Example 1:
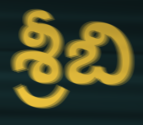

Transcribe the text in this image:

శ్రీబి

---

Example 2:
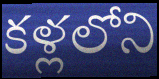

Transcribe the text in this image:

కళ్లలోని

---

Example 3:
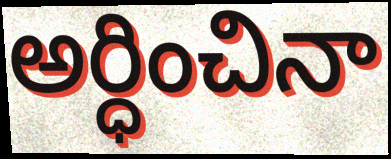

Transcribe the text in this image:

అర్ధించినా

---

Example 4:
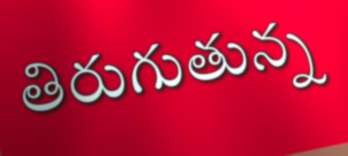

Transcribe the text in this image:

తిరుగుతున్న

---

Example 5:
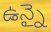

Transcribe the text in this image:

ఉన్నై